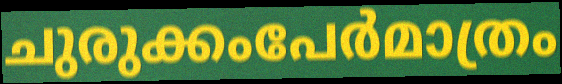
ചുരുക്കംപേർമാത്രം